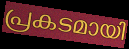
പ്രകടമായി